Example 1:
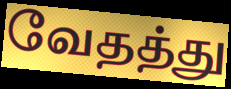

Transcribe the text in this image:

வேதத்து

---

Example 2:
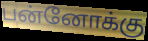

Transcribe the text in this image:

பன்னோக்கு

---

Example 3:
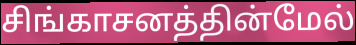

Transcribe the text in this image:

சிங்காசனத்தின்மேல்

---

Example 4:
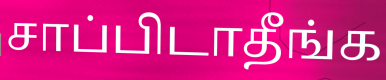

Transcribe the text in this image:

சாப்பிடாதீங்க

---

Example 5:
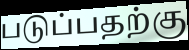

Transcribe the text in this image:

படுப்பதற்கு